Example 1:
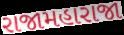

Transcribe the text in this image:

રાજામહારાજા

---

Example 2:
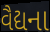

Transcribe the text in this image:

વૈદ્યના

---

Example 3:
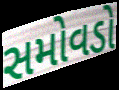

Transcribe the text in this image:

સમોવડો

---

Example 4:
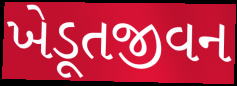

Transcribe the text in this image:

ખેડૂતજીવન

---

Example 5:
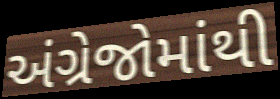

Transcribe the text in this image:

અંગ્રેજોમાંથી